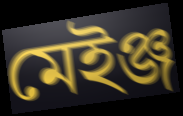
মেইঞ্জ